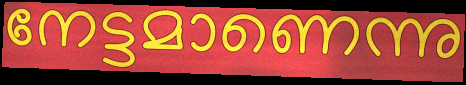
നേട്ടമാണെന്നു